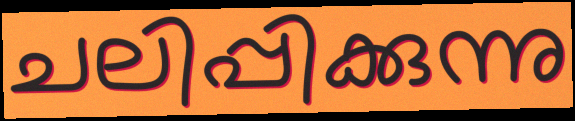
ചലിപ്പിക്കുന്നു